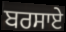
ਬਰਸਾਏ